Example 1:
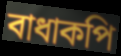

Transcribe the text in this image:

বাধাকপি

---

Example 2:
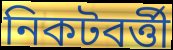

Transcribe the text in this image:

নিকটবর্ত্তী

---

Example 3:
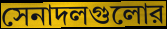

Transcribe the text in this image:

সেনাদলগুলোর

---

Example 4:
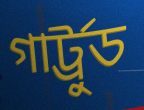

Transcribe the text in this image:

গার্ট্রুড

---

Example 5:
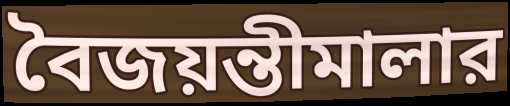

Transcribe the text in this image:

বৈজয়ন্তীমালার